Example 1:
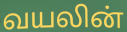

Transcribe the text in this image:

வயலின்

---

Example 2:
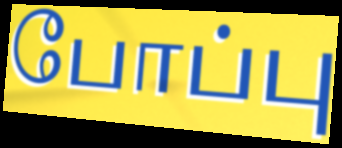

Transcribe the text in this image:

போப்பு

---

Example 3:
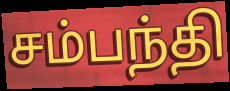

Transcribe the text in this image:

சம்பந்தி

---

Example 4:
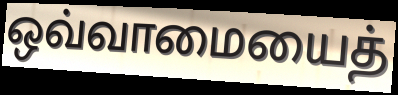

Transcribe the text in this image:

ஒவ்வாமையைத்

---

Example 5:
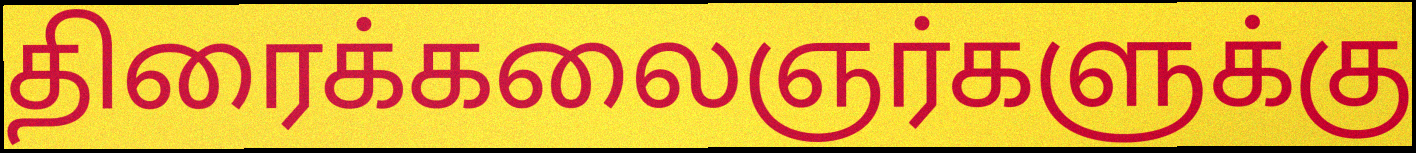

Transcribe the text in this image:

திரைக்கலைஞர்களுக்கு